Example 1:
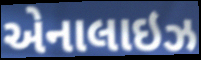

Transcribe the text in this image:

એનાલાઇઝ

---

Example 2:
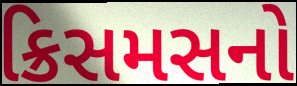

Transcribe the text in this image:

ક્રિસમસનો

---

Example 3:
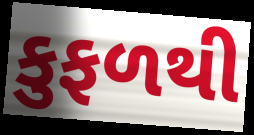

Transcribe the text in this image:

કુફળથી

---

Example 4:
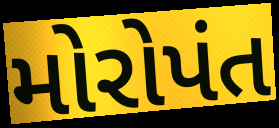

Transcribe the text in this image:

મોરોપંત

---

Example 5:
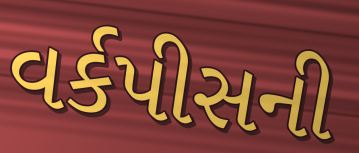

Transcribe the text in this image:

વર્કપીસની